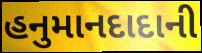
હનુમાનદાદાની